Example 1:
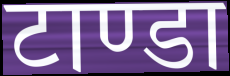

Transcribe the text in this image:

टाण्डा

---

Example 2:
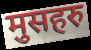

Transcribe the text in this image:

मुसहरु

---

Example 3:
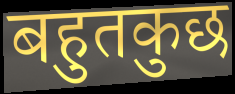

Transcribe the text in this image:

बहुतकुछ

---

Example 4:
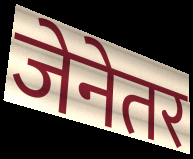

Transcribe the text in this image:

जेनेतर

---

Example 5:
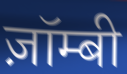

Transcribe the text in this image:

ज़ॉम्बी